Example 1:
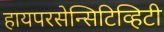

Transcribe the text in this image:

हायपरसेन्सिटिव्हिटी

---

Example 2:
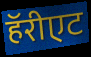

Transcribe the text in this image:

हॅरीएट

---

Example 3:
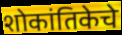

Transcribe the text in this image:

शोकांतिकेचे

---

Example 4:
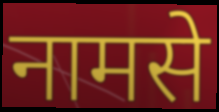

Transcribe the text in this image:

नामसे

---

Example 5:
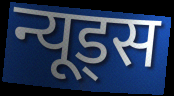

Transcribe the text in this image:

न्यूड्स